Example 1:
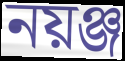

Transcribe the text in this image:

নয়ঞ্জ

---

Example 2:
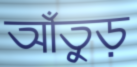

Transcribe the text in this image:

আঁতুড়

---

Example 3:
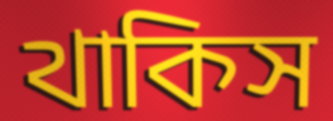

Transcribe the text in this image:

থাকিস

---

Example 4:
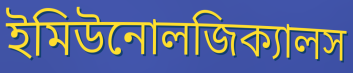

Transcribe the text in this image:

ইমিউনোলজিক্যালস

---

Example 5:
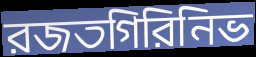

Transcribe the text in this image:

রজতগিরিনিভ